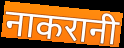
नाकरानी